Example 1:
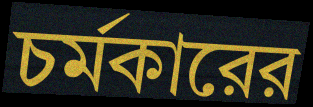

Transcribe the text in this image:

চর্মকারের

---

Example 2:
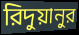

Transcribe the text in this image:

রিদুয়ানুর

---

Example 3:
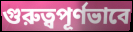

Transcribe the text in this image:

গুরুত্বপূর্ণভাবে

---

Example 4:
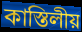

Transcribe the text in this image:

কাস্তিলীয়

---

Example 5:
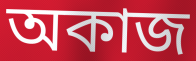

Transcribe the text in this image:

অকাজ